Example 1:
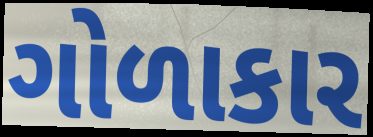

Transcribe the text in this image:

ગોળાકાર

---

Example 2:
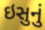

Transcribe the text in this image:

ઇસુનું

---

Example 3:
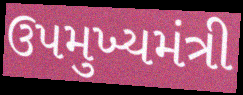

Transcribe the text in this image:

ઉપમુખ્યમંત્રી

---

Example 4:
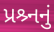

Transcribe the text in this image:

પ્રશ્ર્નનું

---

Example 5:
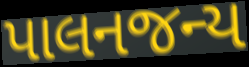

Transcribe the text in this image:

પાલનજન્ય